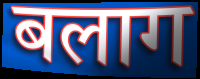
बलाग